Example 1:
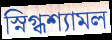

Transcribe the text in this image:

স্নিগ্ধশ্যামল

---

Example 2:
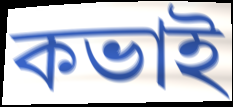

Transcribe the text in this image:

কভাই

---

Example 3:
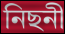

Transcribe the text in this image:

নিছনী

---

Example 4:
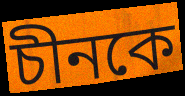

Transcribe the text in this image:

চীনকে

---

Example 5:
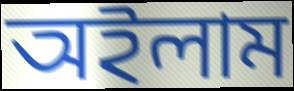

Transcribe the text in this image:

অইলাম